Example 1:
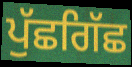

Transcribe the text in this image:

ਪੁੱਛਗਿੱਛ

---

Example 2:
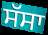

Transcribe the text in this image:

ਸੱਸਾ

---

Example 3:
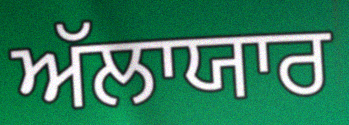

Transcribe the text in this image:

ਅੱਲਾਯਾਰ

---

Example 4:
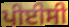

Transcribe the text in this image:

ਪੀਈਸੀ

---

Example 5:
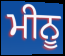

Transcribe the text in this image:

ਮੀਨੂ